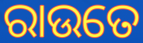
ରାଉତେ